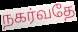
நகர்வதே